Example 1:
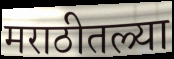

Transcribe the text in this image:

मराठीतल्या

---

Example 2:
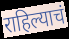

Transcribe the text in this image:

राहिल्याचं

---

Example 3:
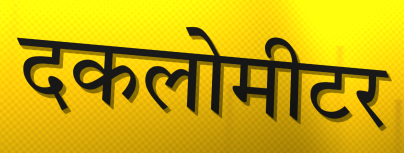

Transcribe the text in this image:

दकलोमीटर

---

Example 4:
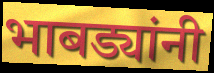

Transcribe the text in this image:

भाबड्यांनी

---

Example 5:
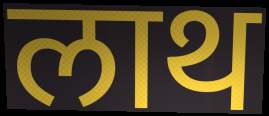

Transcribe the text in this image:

लाथ